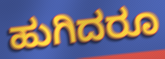
ಹುಗಿದರೂ